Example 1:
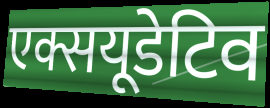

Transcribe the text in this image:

एक्सयूडेटिव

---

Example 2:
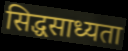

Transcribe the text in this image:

सिद्धसाध्यता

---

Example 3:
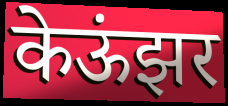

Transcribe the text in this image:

केऊंझर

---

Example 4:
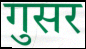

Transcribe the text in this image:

गुसर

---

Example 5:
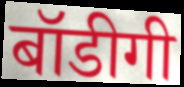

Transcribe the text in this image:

बॉडीगी